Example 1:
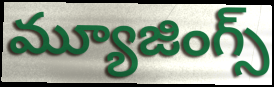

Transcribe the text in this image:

మ్యూజింగ్స్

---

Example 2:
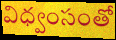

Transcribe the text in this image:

విధ్వంసంతో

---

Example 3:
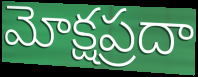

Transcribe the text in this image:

మోక్షప్రదా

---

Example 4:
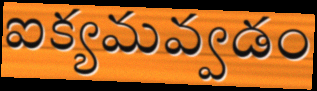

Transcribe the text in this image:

ఐక్యమవ్వడం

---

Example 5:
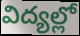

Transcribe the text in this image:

విద్యల్లో